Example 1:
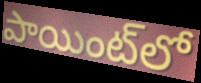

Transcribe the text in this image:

పాయింట్‌లో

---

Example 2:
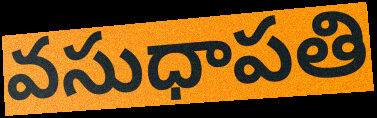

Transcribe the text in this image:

వసుధాపతి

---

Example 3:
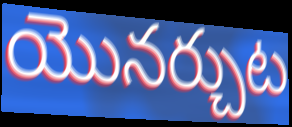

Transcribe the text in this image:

యొనర్చుట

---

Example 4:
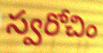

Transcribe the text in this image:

స్వరోచిం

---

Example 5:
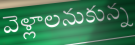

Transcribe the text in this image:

వెళ్లాలనుకున్న